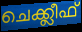
ചെക്ക്ലീഫ്